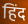
हिंद